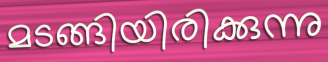
മടങ്ങിയിരിക്കുന്നു